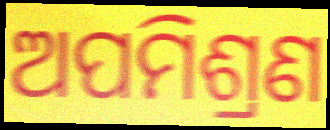
ଅପମିଶ୍ରଣ